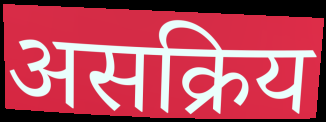
असक्रिय